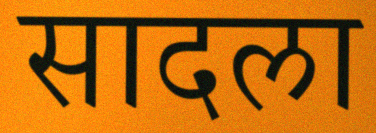
सादला